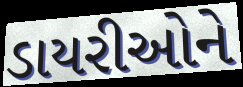
ડાયરીઓને